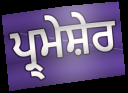
ਪ੍ਰ੍ਮੇਸ਼ੇਰ